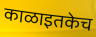
काळाइतकेच